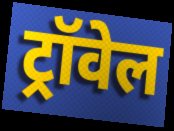
ट्रॉवेल